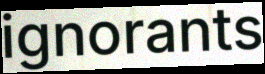
ignorants